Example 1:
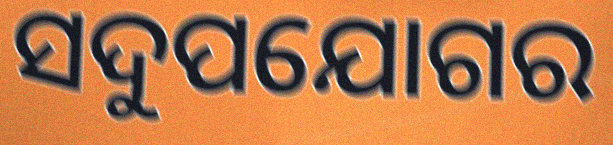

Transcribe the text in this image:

ସଦୁପଯୋଗର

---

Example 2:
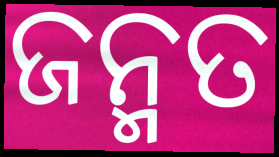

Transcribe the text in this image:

ଜନ୍ମତ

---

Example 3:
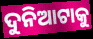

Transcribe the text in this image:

ଦୁନିଆଟାକୁ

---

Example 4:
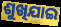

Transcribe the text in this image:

ଶୁଖିଯାଇ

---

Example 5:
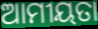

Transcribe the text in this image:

ଆମୀୟତା